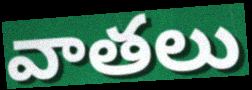
వాతలు